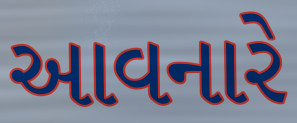
આવનારે